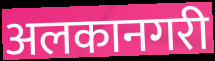
अलकानगरी